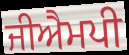
ਜੀਐਮਪੀ